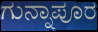
ಗುನ್ನಾಪೂರ